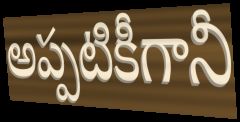
అప్పటికీగానీ